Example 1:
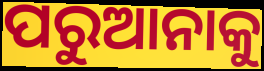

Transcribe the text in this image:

ପରୁଆନାକୁ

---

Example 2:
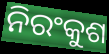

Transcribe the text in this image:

ନିରଂକୁଶ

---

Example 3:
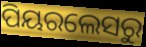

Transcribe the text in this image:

ପିୟରଲେସରୁ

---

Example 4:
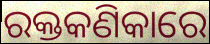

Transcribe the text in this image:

ରକ୍ତକଣିକାରେ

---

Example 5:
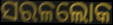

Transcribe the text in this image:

ସରଳଲୋକ